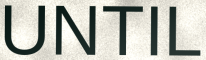
UNTIL